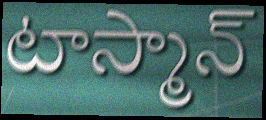
టాస్మాన్